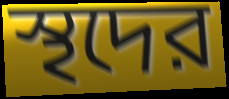
স্থদের